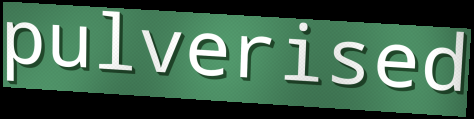
pulverised